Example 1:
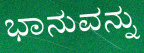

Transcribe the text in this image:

ಭಾನುವನ್ನು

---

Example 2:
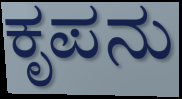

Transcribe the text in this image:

ಕೃಪನು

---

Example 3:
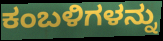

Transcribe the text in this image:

ಕಂಬಳಿಗಳನ್ನು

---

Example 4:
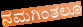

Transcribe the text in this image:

ನಮಗಿಂತಲೂ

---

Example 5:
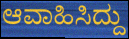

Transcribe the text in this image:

ಆವಾಹಿಸಿದ್ದು